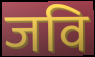
जवि